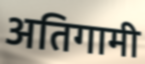
अतिगामी